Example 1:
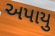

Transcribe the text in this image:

અપાયુ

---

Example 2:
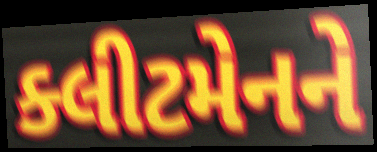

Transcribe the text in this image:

ક્લીટમેનને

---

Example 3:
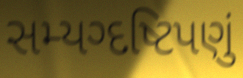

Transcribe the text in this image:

સમ્યગ્દષ્ટિપણું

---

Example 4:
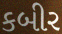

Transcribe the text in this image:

કબીર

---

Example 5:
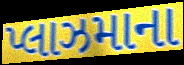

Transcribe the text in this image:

પ્લાઝમાના